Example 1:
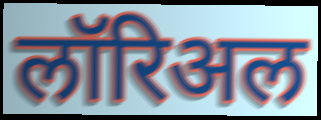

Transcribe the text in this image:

लॉरिअल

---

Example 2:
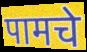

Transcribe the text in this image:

पामचे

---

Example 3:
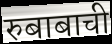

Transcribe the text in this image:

रुबाबाची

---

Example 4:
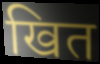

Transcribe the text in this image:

खित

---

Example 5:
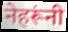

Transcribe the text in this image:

नेहरूंनी